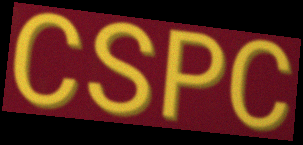
CSPC